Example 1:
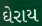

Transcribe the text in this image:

ઘેરાય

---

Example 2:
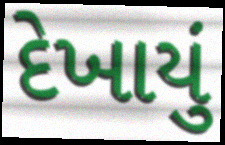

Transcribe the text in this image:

દેખાયું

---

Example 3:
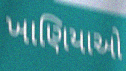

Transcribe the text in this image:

ખાણિયાઓ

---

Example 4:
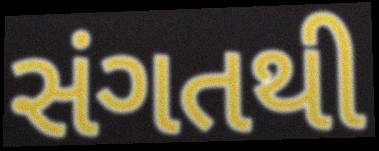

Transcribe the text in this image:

સંગતથી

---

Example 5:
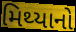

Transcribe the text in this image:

મિથ્યાનો